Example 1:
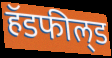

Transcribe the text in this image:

हॅडफील्ड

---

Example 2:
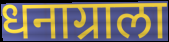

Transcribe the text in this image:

धनाग्राला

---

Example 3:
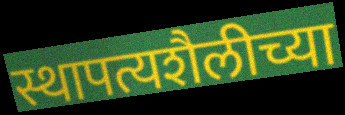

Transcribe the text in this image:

स्थापत्यशैलीच्या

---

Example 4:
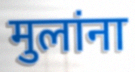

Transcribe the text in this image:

मुलांना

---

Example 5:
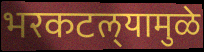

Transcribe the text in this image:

भरकटल्यामुळे